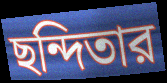
ছন্দিতার